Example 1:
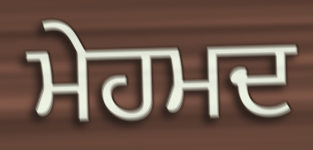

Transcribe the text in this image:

ਮੇਹਮਦ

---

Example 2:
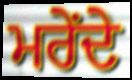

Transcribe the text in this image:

ਮਰੇਂਦੇ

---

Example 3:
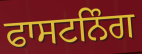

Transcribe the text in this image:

ਫਾਸਟਨਿੰਗ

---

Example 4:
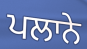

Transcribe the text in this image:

ਪਲਾਨੇ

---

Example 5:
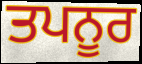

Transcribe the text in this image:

ਤਪਨੂਰ